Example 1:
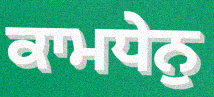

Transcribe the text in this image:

ਕਾਮਧੇਨੁ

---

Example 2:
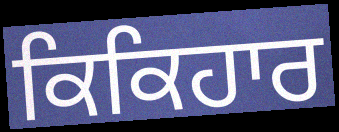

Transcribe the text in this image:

ਕਿਕਿਹਾਰ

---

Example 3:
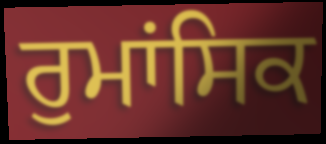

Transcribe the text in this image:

ਰੁਮਾਂਸਿਕ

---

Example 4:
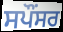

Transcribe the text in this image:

ਸਪੌਂਸਰ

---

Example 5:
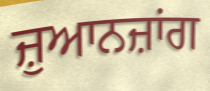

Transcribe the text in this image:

ਜ਼ੁਆਨਜ਼ਾਂਗ